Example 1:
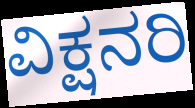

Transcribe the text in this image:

ವಿಕ್ಷನರಿ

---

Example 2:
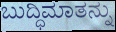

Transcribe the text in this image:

ಬುದ್ಧಿಮಾತನ್ನು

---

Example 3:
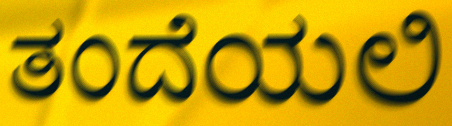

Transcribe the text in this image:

ತಂದೆಯಲಿ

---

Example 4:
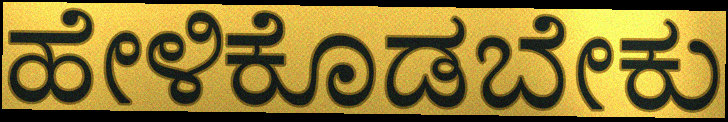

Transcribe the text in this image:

ಹೇಳಿಕೊಡಬೇಕು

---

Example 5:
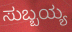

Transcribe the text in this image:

ಸುಬ್ಬಯ್ಯ